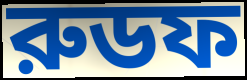
রুডফ